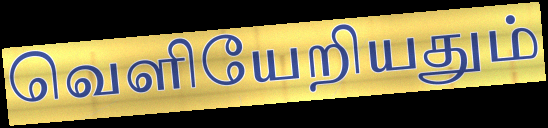
வெளியேறியதும்